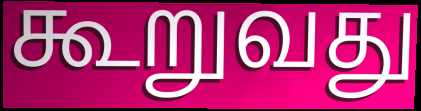
கூறுவது